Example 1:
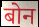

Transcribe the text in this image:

बोन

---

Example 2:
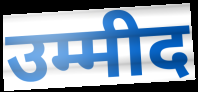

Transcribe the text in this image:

उम्मीद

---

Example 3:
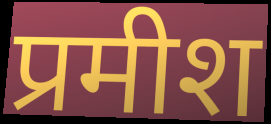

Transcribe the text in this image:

प्रमीश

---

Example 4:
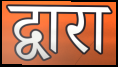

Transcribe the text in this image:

द्वारा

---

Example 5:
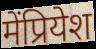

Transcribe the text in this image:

मेंप्रियेश